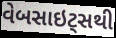
વેબસાઇટ્સથી